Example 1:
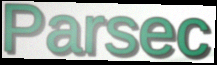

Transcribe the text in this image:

Parsec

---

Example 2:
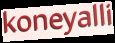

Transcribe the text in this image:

koneyalli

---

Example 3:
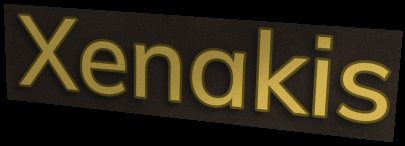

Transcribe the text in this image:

Xenakis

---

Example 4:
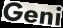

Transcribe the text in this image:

Geni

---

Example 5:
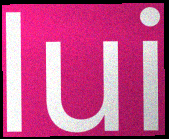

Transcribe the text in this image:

lui